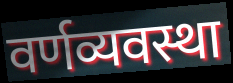
वर्णव्यवस्था